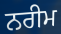
ਨਰੀਮ